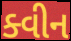
ક્વીન